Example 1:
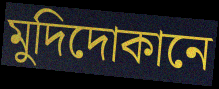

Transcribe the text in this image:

মুদিদোকানে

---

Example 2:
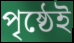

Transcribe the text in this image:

পৃষ্ঠেই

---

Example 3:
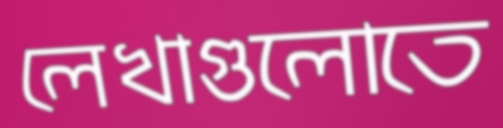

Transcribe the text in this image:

লেখাগুলোতে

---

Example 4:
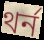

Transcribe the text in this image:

থর্ন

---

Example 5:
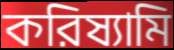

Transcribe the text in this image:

করিষ্যামি